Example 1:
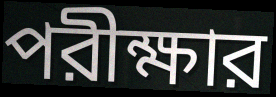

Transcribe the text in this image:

পরীক্ষার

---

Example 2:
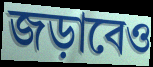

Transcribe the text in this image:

জড়াবেও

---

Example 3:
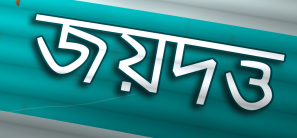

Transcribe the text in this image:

জয়দত্ত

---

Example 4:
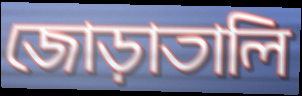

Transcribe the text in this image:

জোড়াতালি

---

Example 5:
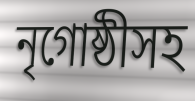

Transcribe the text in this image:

নৃগোষ্ঠীসহ